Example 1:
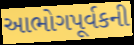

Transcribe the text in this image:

આભોગપૂર્વકની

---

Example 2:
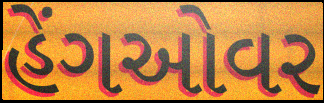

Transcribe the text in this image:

હેંગઓવર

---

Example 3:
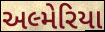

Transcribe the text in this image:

અલ્મેરિયા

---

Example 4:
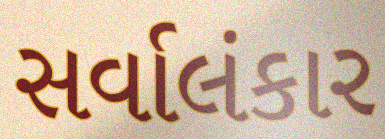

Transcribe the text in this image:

સર્વાલંકાર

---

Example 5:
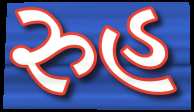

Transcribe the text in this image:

રુહ